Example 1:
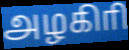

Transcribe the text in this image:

அழகிரி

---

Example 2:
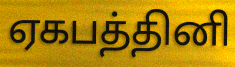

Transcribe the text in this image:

ஏகபத்தினி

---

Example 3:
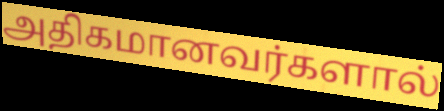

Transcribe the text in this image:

அதிகமானவர்களால்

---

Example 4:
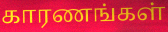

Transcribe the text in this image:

காரணங்கள்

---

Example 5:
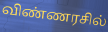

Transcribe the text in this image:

விண்ணரசில்